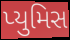
પ્યુમિસ